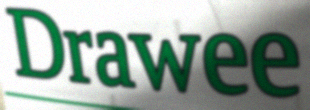
Drawee